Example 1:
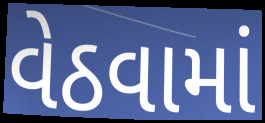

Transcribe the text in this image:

વેઠવામાં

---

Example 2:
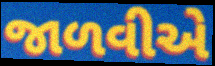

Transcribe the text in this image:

જાળવીએ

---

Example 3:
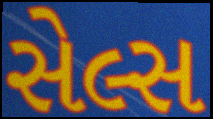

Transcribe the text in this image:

સેલ્સ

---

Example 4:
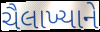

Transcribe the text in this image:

ચૈલાખ્યાને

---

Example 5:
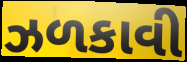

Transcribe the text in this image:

ઝળકાવી